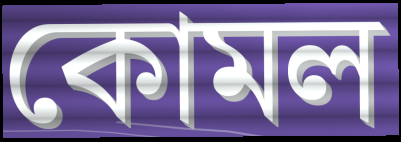
কোমল